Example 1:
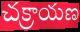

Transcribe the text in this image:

చక్రాయణ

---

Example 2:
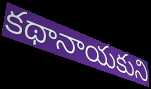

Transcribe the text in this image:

కథానాయకుని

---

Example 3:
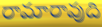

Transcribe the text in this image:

రామారావుది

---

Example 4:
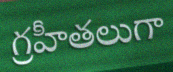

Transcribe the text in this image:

గ్రహీతలుగా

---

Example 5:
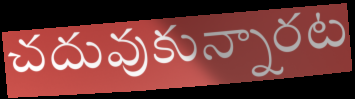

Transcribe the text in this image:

చదువుకున్నారట